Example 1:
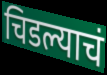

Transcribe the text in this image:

चिडल्याचं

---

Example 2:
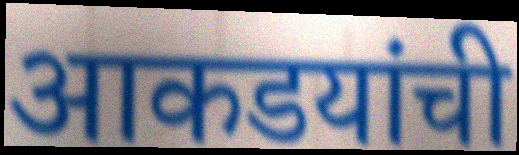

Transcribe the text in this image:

आकडयांची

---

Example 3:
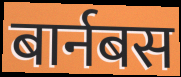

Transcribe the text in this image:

बार्नबस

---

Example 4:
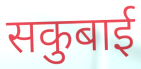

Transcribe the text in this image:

सकुबाई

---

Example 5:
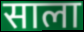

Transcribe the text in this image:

साला